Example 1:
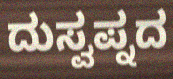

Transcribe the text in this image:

ದುಸ್ವಪ್ನದ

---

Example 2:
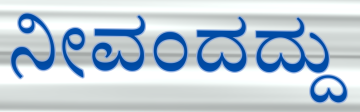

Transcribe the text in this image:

ನೀವಂದದ್ದು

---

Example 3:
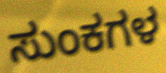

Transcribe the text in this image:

ಸುಂಕಗಳ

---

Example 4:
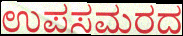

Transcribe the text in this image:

ಉಪಸಮರದ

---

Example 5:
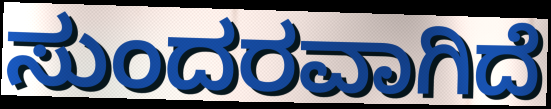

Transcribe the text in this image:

ಸುಂದರವಾಗಿದೆ